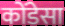
कोंडेसा